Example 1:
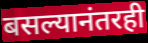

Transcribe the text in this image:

बसल्यानंतरही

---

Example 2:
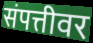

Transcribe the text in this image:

संपत्तीवर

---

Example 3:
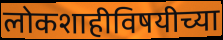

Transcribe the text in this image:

लोकशाहीविषयीच्या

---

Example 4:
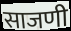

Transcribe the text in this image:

साजणी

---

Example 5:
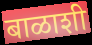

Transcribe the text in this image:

बाळाशी